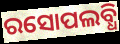
ରସୋପଲବ୍ଧି